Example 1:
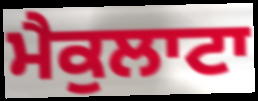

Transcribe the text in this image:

ਮੈਕੁਲਾਟਾ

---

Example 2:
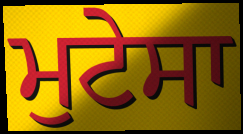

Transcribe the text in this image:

ਮੁਟੇਸਾ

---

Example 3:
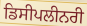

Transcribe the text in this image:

ਡਿਸੀਪਲੀਨਰੀ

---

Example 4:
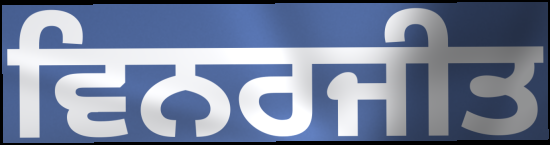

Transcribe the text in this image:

ਵਿਨਰਜੀਤ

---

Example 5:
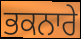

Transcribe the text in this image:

ਭਕਨਾਰੇ